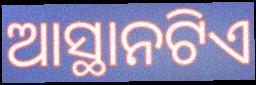
ଆସ୍ଥାନଟିଏ